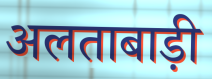
अलताबाड़ी